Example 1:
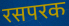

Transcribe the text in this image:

रसपरक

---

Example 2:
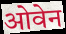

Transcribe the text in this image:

ओवेन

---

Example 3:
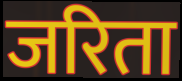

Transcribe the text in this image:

जरिता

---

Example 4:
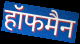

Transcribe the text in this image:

हॉफमैन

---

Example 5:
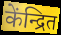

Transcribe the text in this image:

केंन्द्रित